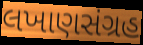
લખાણસંગ્રહ